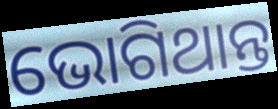
ଭୋଗିଥାନ୍ତ